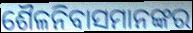
ଶୈଳନିବାସମାନଙ୍କର